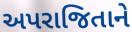
અપરાજિતાને